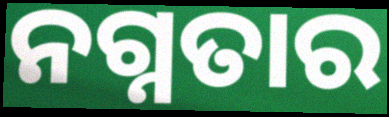
ନଗ୍ନତାର